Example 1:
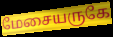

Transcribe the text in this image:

மேசையருகே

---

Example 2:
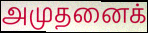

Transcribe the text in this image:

அமுதனைக்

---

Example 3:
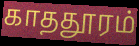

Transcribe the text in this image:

காததூரம்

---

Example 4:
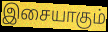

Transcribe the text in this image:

இசையாகும்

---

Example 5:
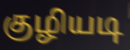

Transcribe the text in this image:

குழியடி